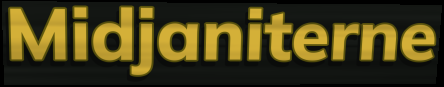
Midjaniterne